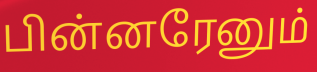
பின்னரேனும்